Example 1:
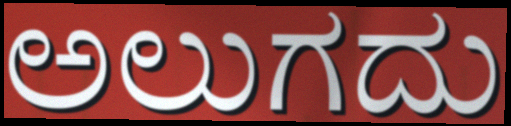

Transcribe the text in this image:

ಅಲುಗದು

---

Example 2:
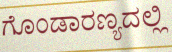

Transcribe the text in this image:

ಗೊಂಡಾರಣ್ಯದಲ್ಲಿ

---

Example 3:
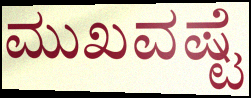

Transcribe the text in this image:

ಮುಖವಷ್ಟೆ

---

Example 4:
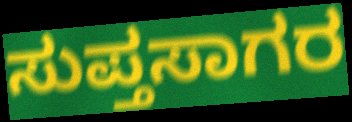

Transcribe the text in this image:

ಸುಪ್ತಸಾಗರ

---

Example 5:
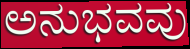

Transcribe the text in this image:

ಅನುಭವವು